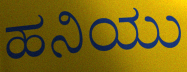
ಹನಿಯು